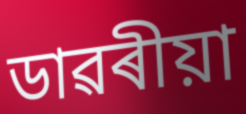
ডাৱৰীয়া